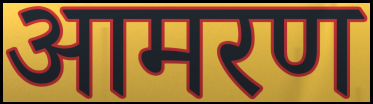
आमरण